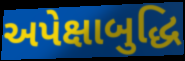
અપેક્ષાબુદ્ધિ